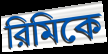
রিমিকে